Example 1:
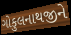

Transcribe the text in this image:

ગોકુલનાથજીને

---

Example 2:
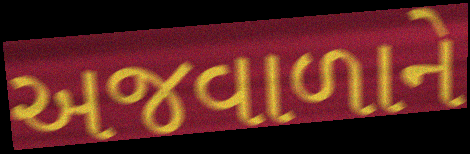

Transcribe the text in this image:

અજવાળાને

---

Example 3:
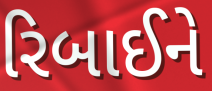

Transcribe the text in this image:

રિબાઈને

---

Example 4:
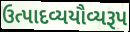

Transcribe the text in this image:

ઉત્પાદવ્યયૌવ્યરૂપ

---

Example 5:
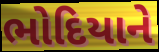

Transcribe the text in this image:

ભોદિયાને